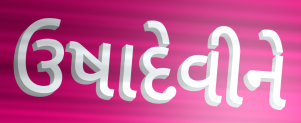
ઉષાદેવીને